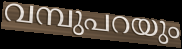
വമ്പുപറയും